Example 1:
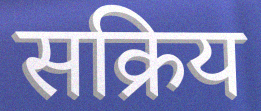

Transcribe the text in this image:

सक्रिय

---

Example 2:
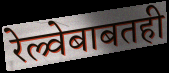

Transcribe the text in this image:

रेल्वेबाबतही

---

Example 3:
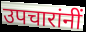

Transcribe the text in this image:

उपचारांनीं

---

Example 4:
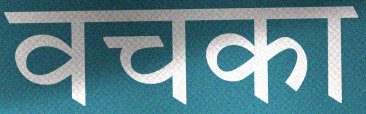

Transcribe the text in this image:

वचका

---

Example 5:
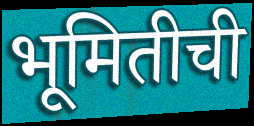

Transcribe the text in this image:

भूमितीची